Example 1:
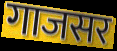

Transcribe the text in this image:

गाजसर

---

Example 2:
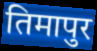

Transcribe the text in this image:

तिमापुर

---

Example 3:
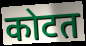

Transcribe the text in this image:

कोटत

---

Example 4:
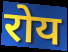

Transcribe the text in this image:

रोय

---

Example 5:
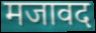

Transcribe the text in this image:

मजावद